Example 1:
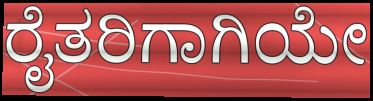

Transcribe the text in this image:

ರೈತರಿಗಾಗಿಯೇ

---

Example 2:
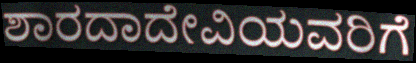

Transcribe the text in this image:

ಶಾರದಾದೇವಿಯವರಿಗೆ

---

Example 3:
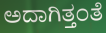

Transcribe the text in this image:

ಅದಾಗಿತ್ತಂತೆ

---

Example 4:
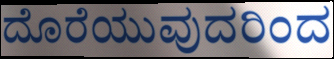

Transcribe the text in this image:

ದೊರೆಯುವುದರಿಂದ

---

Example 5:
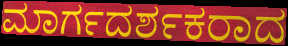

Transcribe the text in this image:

ಮಾರ್ಗದರ್ಶಕರಾದ